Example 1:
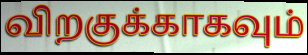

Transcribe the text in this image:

விறகுக்காகவும்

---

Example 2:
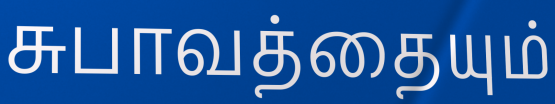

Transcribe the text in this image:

சுபாவத்தையும்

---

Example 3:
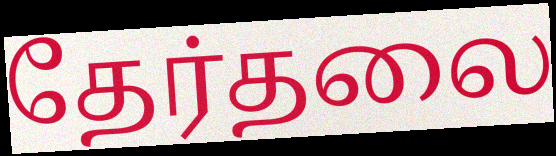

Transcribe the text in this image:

தேர்தலை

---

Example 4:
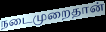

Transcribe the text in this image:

நடைமுறைதான்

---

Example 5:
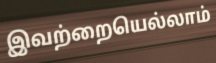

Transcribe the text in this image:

இவற்றையெல்லாம்